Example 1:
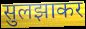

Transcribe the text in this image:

सुलझाकर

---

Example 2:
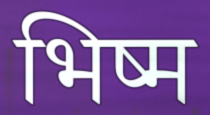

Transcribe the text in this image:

भिष्म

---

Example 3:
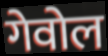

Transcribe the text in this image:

गेवोल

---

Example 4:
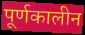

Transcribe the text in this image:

पूर्णकालीन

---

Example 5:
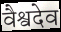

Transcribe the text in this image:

वैश्वदेव